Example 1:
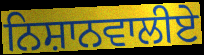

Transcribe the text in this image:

ਨਿਸ਼ਾਨਵਾਲੀਏ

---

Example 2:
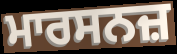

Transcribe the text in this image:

ਮਾਰਸਨਜ਼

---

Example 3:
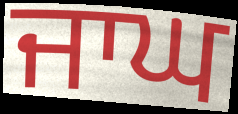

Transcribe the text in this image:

ਜਾਘ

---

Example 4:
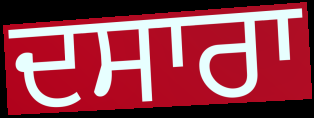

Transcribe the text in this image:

ਦਸਾਰਾ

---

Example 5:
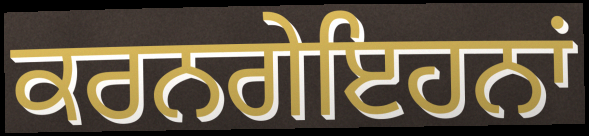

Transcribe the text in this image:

ਕਰਨਗੇਇਹਨਾਂ